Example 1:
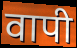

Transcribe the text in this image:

वापी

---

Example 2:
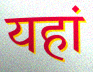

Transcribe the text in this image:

यहां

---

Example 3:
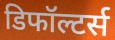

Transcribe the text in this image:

डिफॉल्टर्स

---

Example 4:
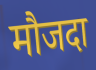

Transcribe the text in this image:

मौजदा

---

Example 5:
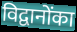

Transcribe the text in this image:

विद्वानोंका